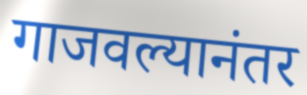
गाजवल्यानंतर